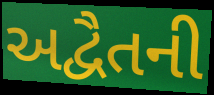
અદ્વૈતની